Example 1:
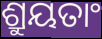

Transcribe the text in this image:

ଶ୍ରୁୟତାଂ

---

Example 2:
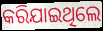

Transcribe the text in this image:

କରିଯାଇଥିଲେ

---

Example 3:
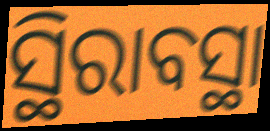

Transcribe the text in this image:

ସ୍ଥିରାବସ୍ଥା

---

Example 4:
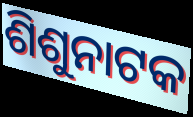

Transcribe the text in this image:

ଶିଶୁନାଟକ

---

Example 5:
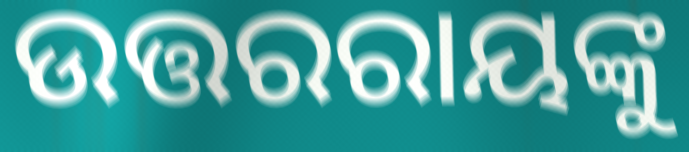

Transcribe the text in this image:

ଉତ୍ତରରାୟଙ୍କୁ